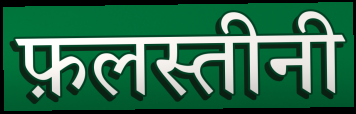
फ़लस्तीनी